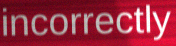
incorrectly